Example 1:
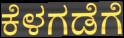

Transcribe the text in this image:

ಕೆಳಗಡೆಗೆ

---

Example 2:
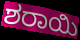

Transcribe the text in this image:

ಶರಾಯಿ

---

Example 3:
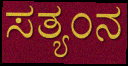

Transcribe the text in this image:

ಸತ್ಯಂನ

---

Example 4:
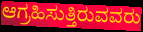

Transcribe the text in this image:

ಆಗ್ರಹಿಸುತ್ತಿರುವವರು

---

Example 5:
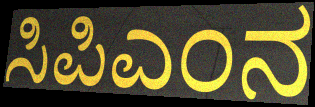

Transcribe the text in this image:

ಸಿಪಿಎಂನ